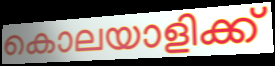
കൊലയാളിക്ക്